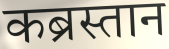
कब्रस्तान